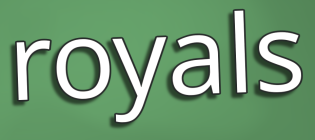
royals